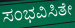
ಸಂಭವಿಸಿತೇ